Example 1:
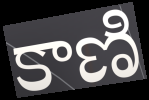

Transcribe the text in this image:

కాణి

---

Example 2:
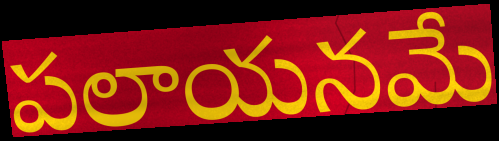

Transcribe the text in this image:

పలాయనమే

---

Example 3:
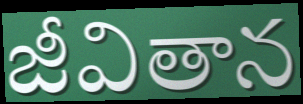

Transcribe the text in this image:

జీవితాన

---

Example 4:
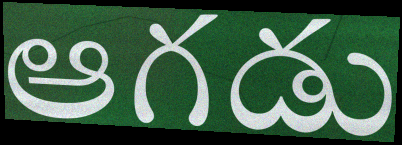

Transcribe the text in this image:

ఆగడు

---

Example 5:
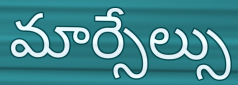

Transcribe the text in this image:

మార్సేల్సు